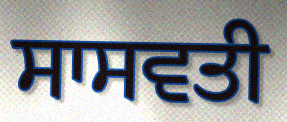
ਸਾਸਵਤੀ